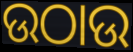
ଉଠାଉ